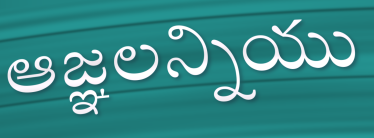
ఆజ్ఞలన్నియు